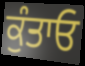
ਕੁੰਤਾਓ